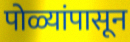
पोळ्यांपासून